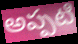
అప్పటి